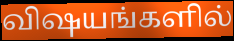
விஷயங்களில்